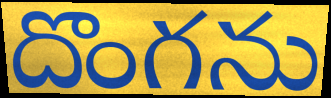
దొంగను